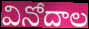
వినోదాల